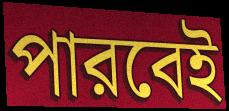
পারবেই